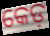
କେଡ଼